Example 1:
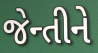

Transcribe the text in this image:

જેન્તીને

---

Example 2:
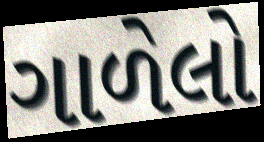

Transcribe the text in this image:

ગાળેલો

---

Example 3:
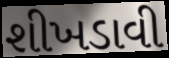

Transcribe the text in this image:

શીખડાવી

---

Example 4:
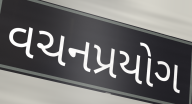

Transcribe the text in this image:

વચનપ્રયોગ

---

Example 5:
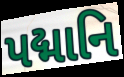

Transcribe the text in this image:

પદ્માનિ